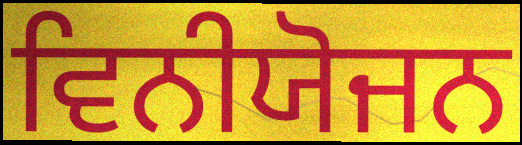
ਵਿਨੀਯੋਜਨ